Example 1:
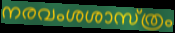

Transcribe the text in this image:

നരവംശശാസ്‌ത്രം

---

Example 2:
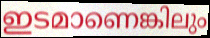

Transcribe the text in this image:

ഇടമാണെങ്കിലും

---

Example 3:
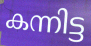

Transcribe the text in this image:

കന്നിട്ട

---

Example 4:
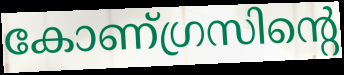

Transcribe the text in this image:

കോണ്ഗ്രസിന്റെ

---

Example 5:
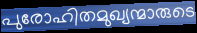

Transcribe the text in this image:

പുരോഹിതമുഖ്യന്മാരുടെ